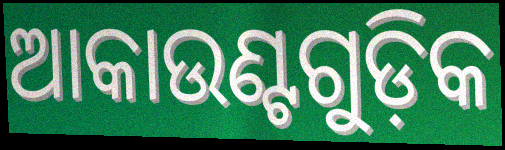
ଆକାଉଣ୍ଟଗୁଡ଼ିକ